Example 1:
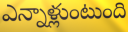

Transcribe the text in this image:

ఎన్నాళ్లుంటుంది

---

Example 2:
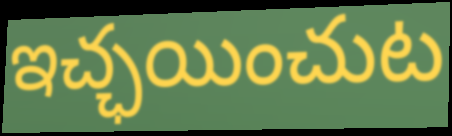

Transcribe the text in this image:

ఇచ్ఛయించుట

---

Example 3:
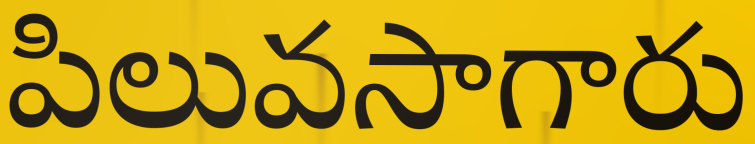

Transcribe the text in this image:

పిలువసాగారు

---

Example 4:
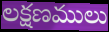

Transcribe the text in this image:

లక్షణములు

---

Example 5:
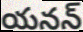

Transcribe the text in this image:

యనన్